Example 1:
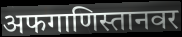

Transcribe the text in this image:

अफगाणिस्तानवर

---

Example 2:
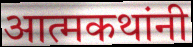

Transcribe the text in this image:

आत्मकथांनी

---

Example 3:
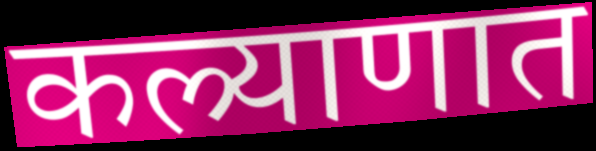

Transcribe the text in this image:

कल्याणात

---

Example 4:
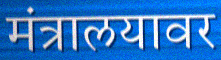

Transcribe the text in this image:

मंत्रालयावर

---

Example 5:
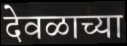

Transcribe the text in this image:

देवळाच्या